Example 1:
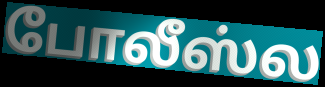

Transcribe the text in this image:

போலீஸ்ல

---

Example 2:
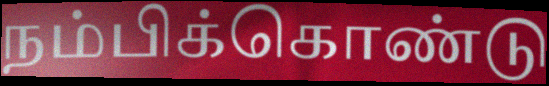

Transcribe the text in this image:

நம்பிக்கொண்டு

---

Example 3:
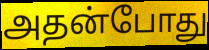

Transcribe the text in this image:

அதன்போது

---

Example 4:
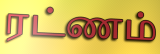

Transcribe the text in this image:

ரட்ணம்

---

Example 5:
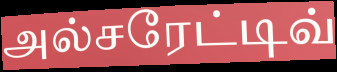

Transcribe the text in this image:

அல்சரேட்டிவ்